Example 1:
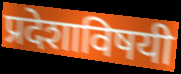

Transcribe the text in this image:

प्रदेशाविषयी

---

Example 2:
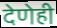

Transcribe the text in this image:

देणेही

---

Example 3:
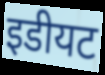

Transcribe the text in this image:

इडीयट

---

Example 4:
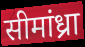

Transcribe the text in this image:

सीमांध्रा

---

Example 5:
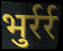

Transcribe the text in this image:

भुर्रर्र